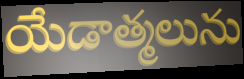
యేడాత్మలును